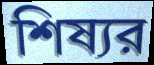
শিষ্যর